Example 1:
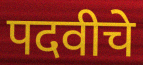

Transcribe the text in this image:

पदवीचे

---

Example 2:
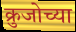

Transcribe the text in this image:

क्रुजोच्या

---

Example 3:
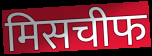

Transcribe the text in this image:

मिसचीफ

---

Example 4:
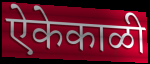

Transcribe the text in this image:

ऐकेकाळी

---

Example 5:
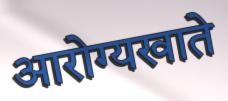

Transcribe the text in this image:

आरोग्यखाते